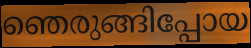
ഞെരുങ്ങിപ്പോയ